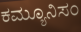
ಕಮ್ಯೂನಿಸಂ